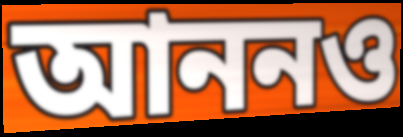
আননও